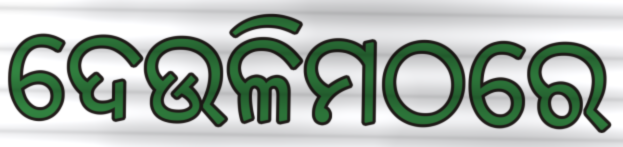
ଦେଉଳିମଠରେ